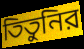
তিতুনির